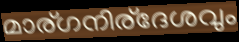
മാര്ഗനിര്ദേശവും